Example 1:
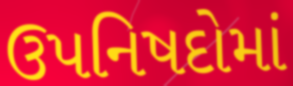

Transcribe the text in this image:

ઉપનિષદોમાં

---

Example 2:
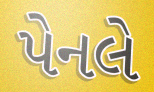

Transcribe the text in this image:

પેનલે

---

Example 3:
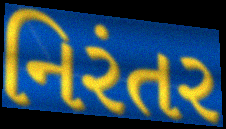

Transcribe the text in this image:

નિરંતર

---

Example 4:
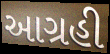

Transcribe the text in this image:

આગ્રહી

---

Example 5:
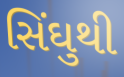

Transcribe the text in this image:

સિંઘુથી